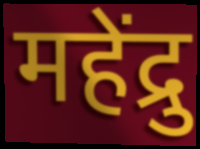
महेंद्रु